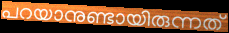
പറയാനുണ്ടായിരുന്നത്